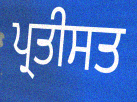
ਪ੍ਰਤੀਸਤ